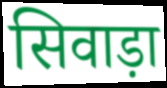
सिवाड़ा